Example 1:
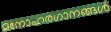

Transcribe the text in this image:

മനോഹരഗാനങ്ങൾ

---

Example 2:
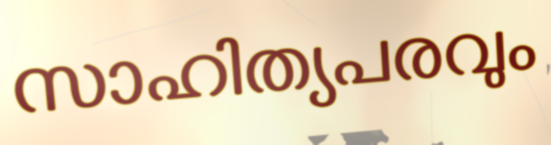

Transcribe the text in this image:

സാഹിത്യപരവും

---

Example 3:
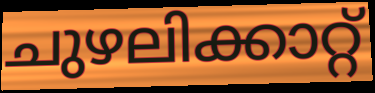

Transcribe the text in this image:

ചുഴലിക്കാറ്റ്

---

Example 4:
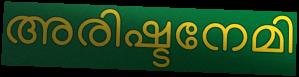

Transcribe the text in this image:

അരിഷ്ടനേമി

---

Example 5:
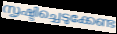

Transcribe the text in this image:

സൃഷ്ടിച്ചെടുക്കേണ്ട